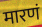
मारणं